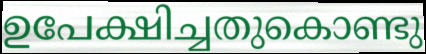
ഉപേക്ഷിച്ചതുകൊണ്ടു